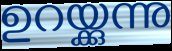
ഉറയ്ക്കുന്നു